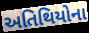
અતિથિયોના